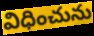
విధించును